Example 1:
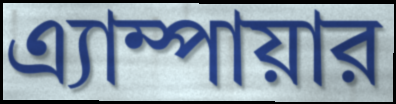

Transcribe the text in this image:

এ্যাম্পায়ার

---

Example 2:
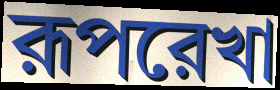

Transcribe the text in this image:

রূপরেখা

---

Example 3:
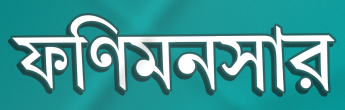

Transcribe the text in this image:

ফণিমনসার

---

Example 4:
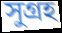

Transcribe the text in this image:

সুগ্রহ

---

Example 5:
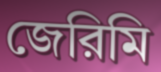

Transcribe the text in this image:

জেরিমি